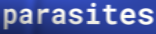
parasites